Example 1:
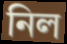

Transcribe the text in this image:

নিল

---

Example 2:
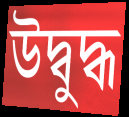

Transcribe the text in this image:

উদ্বুদ্ধ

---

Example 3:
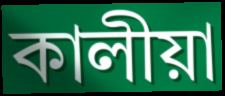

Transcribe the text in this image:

কালীয়া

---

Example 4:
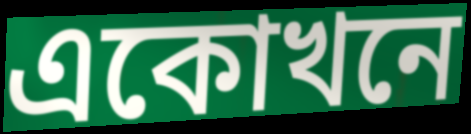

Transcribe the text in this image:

একোখনে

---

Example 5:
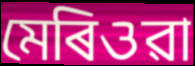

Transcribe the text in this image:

মেৰিওৱা